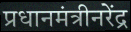
प्रधानमंत्रीनरेंद्र